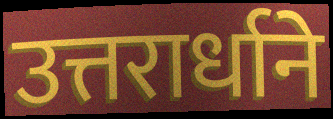
उत्तरार्धाने